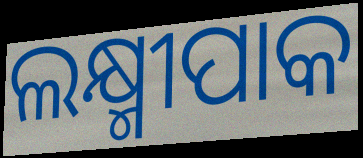
ଲକ୍ଷ୍ମୀପାକ